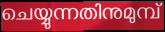
ചെയ്യുന്നതിനുമുമ്പ്